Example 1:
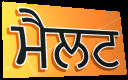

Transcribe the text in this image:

ਮੈਲਟ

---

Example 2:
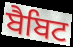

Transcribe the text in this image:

ਬੈਬਿਟ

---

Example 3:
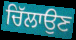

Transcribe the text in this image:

ਚਿੱਲਾਉਣ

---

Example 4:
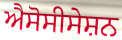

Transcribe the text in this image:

ਐਸੋਸੀਸੇਸ਼ਨ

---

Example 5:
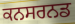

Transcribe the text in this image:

ਕਨਸਰਨਡ